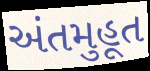
અંતમુહૂત